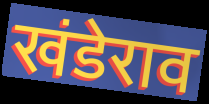
खंडेराव